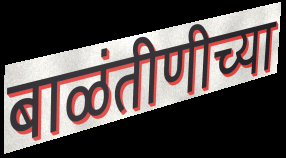
बाळंतीणीच्या